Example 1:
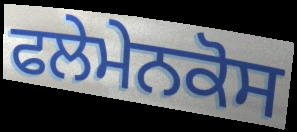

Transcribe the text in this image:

ਫਲੇਮੇਨਕੋਸ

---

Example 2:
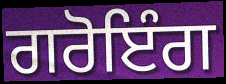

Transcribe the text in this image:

ਗਰੋਇੰਗ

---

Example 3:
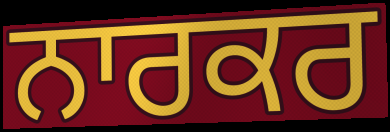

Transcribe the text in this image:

ਨਾਰਕਰ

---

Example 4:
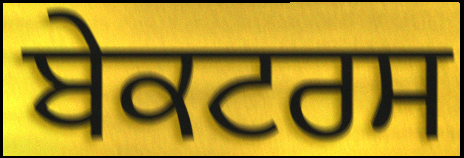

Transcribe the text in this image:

ਬੇਕਟਰਸ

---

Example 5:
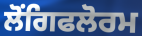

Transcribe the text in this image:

ਲੋਂਗਿਫਲੋਰਮ